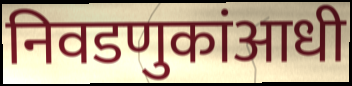
निवडणुकांआधी